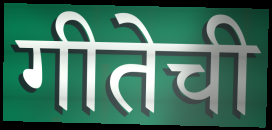
गीतेची